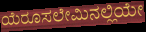
ಯೆರೂಸಲೇಮಿನಲ್ಲಿಯೇ